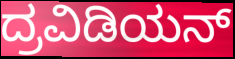
ದ್ರವಿಡಿಯನ್